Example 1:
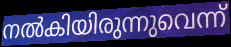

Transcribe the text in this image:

നൽകിയിരുന്നുവെന്ന്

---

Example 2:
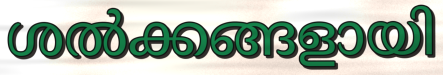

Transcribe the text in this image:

ശൽക്കങ്ങളായി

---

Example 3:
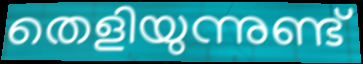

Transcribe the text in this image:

തെളിയുന്നുണ്ട്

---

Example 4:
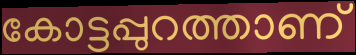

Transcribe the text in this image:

കോട്ടപ്പുറത്താണ്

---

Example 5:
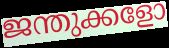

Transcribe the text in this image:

ജന്തുക്കളോ